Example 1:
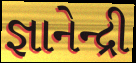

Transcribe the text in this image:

જ્ઞાનેન્દ્રી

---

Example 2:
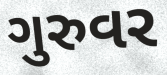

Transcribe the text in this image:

ગુરુવર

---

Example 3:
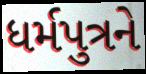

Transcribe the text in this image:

ધર્મપુત્રને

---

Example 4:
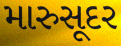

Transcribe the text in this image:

મારુસૂદર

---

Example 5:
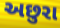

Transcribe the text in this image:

અછુરા